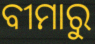
ବୀମାରୁ